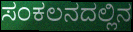
ಸಂಕಲನದಲ್ಲಿನ